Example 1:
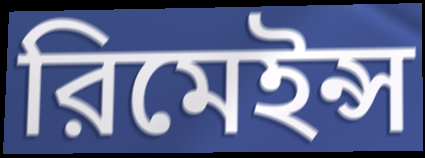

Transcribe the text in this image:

রিমেইন্স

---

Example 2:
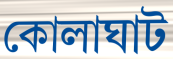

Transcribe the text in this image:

কোলাঘাট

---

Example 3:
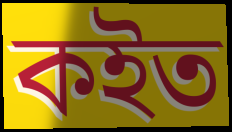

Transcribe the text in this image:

কইত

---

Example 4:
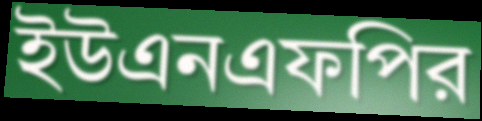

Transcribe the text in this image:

ইউএনএফপির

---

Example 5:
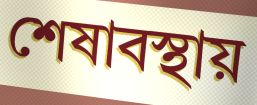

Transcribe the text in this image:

শেষাবস্থায়